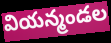
వియన్మండల